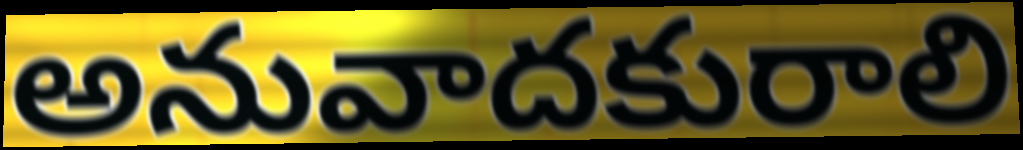
అనువాదకురాలి